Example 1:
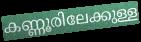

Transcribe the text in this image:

കണ്ണൂരിലേക്കുള്ള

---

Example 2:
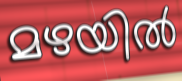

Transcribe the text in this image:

മഴയിൽ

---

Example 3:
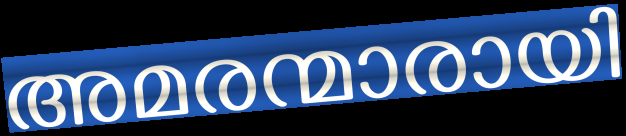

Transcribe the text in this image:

അമരന്മാരായി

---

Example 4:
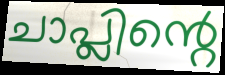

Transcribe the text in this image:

ചാപ്ലിന്റെ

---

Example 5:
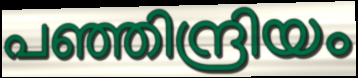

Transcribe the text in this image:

പഞ്ഞിന്ദ്രിയം